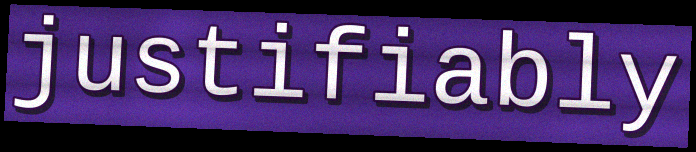
justifiably